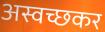
अस्वच्छकर